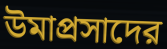
উমাপ্রসাদের